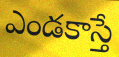
ఎండకాస్తే